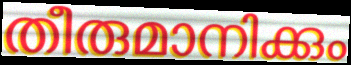
തീരുമാനിക്കും